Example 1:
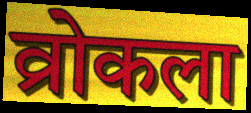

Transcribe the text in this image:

व्रोकला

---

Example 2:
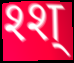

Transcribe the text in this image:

श्श्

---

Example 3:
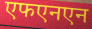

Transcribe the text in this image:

एफएनएन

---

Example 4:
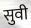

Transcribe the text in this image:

सुवी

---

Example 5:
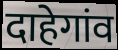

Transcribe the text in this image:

दाहेगांव